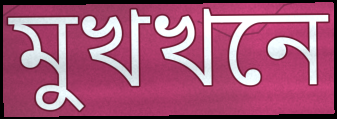
মুখখনে